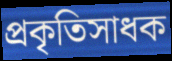
প্রকৃতিসাধক